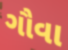
ગૌવા